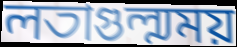
লতাগুল্মময়